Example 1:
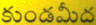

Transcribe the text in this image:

కుండమీద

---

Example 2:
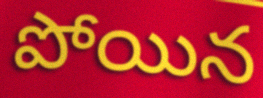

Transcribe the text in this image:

పోయిన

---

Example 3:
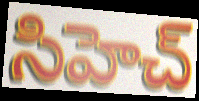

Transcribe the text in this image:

సిహెచ్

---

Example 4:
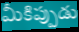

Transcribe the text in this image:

మీకిప్పుడు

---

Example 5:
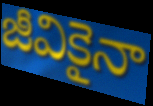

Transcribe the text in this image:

జీవికైనా